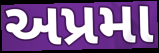
અપ્રમા